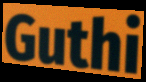
Guthi